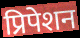
प्रिपेशन